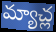
మ్యాచ్ల